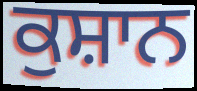
ਕੁਸ਼ਾਨ